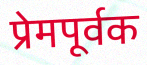
प्रेमपूर्वक